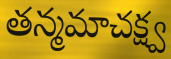
తన్మమాచక్ష్వ